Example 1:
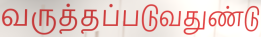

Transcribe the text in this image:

வருத்தப்படுவதுண்டு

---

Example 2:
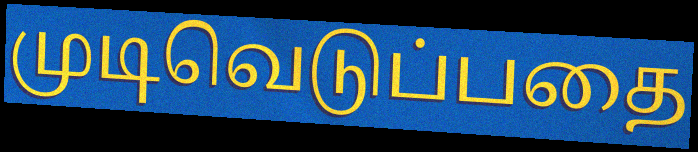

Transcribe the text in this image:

முடிவெடுப்பதை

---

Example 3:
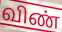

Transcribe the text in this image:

விண்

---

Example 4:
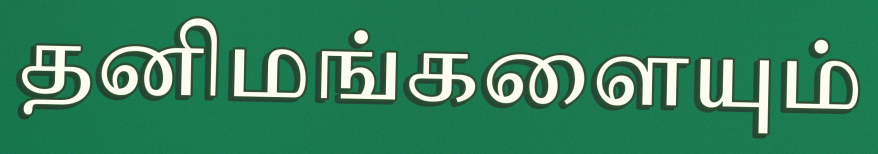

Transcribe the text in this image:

தனிமங்களையும்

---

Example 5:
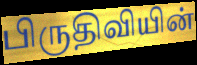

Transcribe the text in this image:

பிருதிவியின்